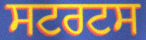
ਸਟਰਟਸ